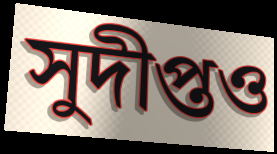
সুদীপ্তও